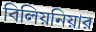
বিলিয়নিয়ার